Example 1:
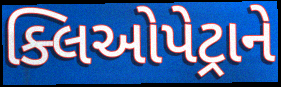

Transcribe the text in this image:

ક્લિઓપેટ્રાને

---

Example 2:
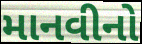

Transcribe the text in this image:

માનવીનો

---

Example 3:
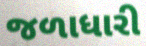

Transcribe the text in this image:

જળાધારી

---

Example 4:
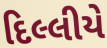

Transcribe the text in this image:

દિલ્લીયે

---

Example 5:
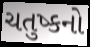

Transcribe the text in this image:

ચતુષ્કનો